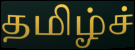
தமிழ்ச்